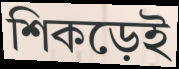
শিকড়েই